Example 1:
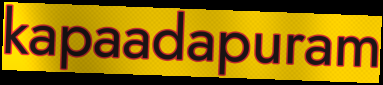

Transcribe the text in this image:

kapaadapuram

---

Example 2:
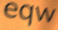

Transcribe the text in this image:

eqw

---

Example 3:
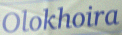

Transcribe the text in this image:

Olokhoira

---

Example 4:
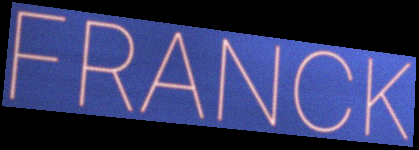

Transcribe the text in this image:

FRANCK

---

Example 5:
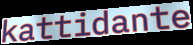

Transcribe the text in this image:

kattidante